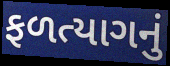
ફળત્યાગનું